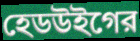
হেডউইগের